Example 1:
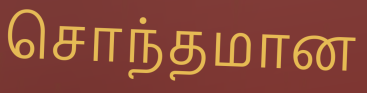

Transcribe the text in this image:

சொந்தமான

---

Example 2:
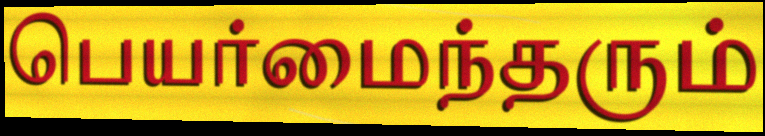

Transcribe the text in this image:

பெயர்மைந்தரும்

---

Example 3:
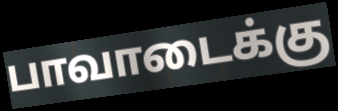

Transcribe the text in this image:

பாவாடைக்கு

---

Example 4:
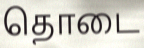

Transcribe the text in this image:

தொடை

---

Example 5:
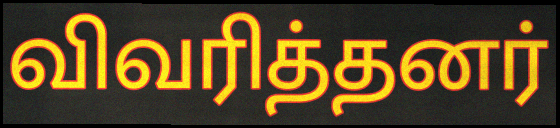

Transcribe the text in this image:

விவரித்தனர்